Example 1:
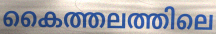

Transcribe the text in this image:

കൈത്തലത്തിലെ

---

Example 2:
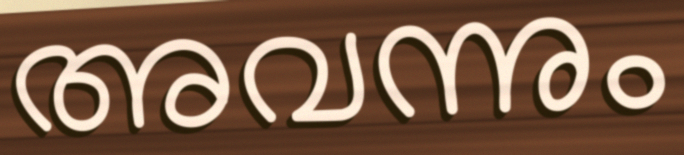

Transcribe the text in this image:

അവന്നും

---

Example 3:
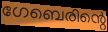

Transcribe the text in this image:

ഗേബെരിന്റെ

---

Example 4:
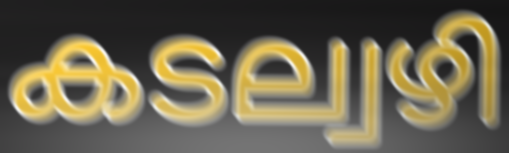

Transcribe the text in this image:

കടല്വഴി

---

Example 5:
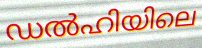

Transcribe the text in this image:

ഡൽഹിയിലെ